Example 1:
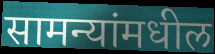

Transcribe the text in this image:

सामन्यांमधील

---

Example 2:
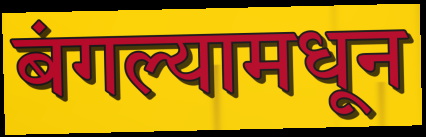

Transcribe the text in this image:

बंगल्यामधून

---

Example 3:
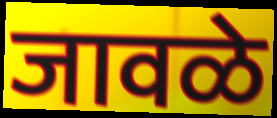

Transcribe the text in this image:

जावळे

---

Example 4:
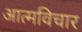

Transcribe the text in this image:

आत्मविचार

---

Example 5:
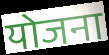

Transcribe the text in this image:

योजना